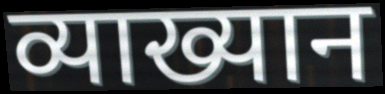
व्याख्यान